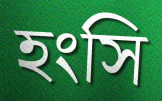
হংসি